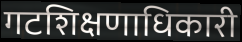
गटशिक्षणाधिकारी